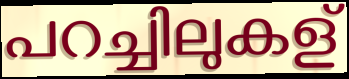
പറച്ചിലുകള്